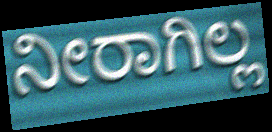
ನೀರಾಗಿಲ್ಲ